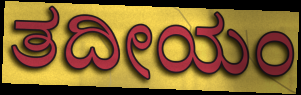
ತದೀಯಂ